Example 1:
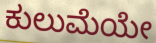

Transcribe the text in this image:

ಕುಲುಮೆಯೇ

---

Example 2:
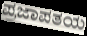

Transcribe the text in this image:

ಪ್ರಜಾಪತಯ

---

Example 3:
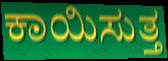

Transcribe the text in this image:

ಕಾಯಿಸುತ್ತ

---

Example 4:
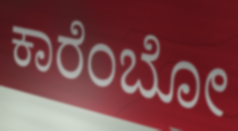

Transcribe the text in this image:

ಕಾರೆಂಬೋ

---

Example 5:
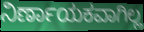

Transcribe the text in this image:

ನಿರ್ಣಾಯಕವಾಗಿಲ್ಲ